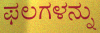
ಫಲಗಳನ್ನು